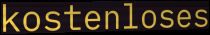
kostenloses